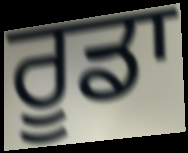
ਰੂਡਾ